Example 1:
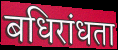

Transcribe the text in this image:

बधिरांधता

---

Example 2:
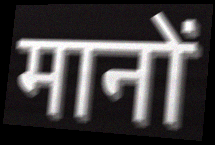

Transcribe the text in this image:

मानों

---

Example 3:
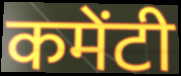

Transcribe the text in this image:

कमेंटी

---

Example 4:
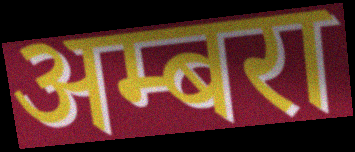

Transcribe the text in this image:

अम्बरा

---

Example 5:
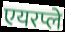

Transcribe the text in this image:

एयरप्ले